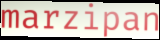
marzipan